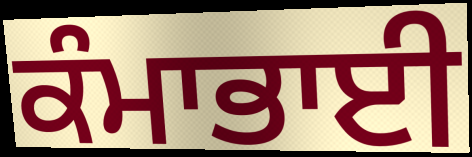
ਕੰਮਾਭਾਈ